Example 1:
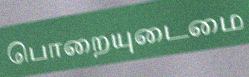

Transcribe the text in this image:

பொறையுடைமை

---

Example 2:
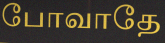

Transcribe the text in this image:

போவாதே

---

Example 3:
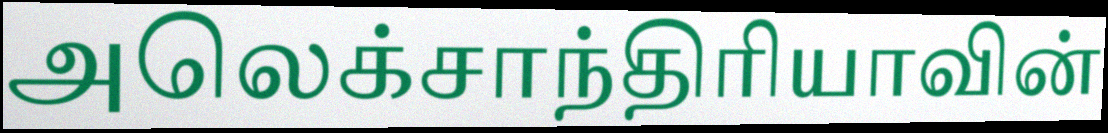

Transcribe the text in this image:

அலெக்சாந்திரியாவின்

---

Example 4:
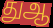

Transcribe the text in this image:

துஆ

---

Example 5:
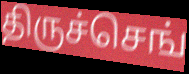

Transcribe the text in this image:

திருச்செங்